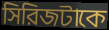
সিরিজটাকে